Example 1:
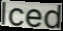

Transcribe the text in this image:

Iced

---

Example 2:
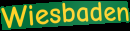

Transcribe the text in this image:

Wiesbaden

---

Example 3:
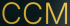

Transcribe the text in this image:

CCM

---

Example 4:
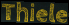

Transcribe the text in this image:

Thiele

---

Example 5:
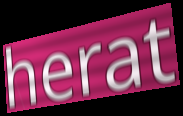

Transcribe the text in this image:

herat